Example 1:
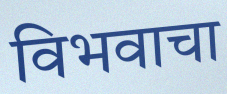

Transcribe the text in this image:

विभवाचा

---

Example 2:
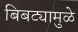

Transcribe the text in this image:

बिबट्यामुळे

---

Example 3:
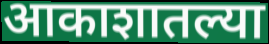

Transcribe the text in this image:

आकाशातल्या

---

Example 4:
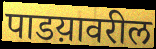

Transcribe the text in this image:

पाडय़ावरील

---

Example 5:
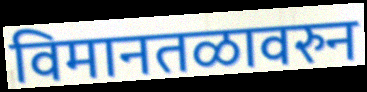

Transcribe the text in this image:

विमानतळावरुन